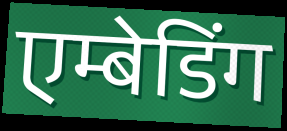
एम्बेडिंग